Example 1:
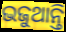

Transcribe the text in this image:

ଭଜୁଥାନ୍ତି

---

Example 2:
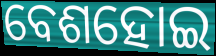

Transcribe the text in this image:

ବେଶହୋଇ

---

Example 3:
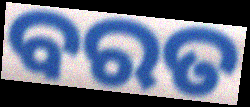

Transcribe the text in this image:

ବରତ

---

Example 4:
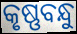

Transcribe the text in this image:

କୃଷ୍ଣବନ୍ଧୁ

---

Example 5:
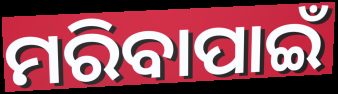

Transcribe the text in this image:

ମରିବାପାଇଁ